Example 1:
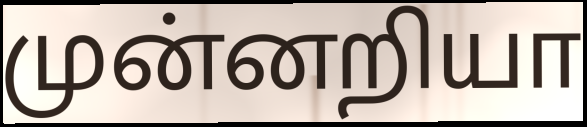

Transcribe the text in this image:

முன்னறியா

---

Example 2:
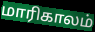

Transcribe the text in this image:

மாரிகாலம்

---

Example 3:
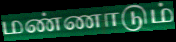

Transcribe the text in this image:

மண்ணாடும்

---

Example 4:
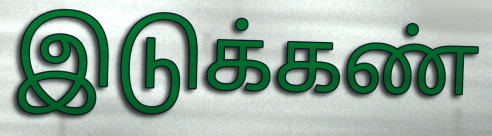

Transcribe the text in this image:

இடுக்கண்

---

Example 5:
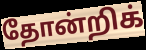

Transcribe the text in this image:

தோன்றிக்